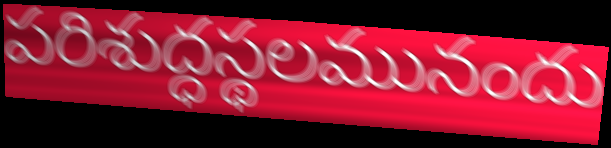
పరిశుద్ధస్థలమునందు